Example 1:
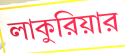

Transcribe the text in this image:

লাকুরিয়ার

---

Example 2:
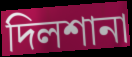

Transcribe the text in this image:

দিলশানা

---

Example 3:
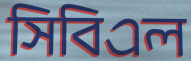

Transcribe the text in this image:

সিবিএল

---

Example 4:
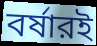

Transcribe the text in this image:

বর্ষারই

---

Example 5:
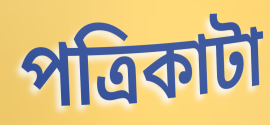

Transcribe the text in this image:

পত্রিকাটা